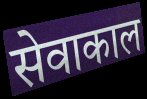
सेवाकाल